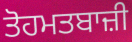
ਤੋਹਮਤਬਾਜ਼ੀ